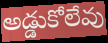
అడ్డుకోలేవు